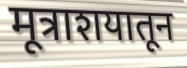
मूत्राशयातून